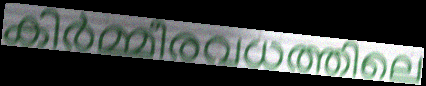
കിർമ്മീരവധത്തിലെ